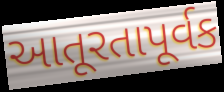
આતૂરતાપૂર્વક